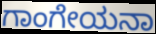
ಗಾಂಗೇಯನಾ